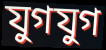
যুগযুগ